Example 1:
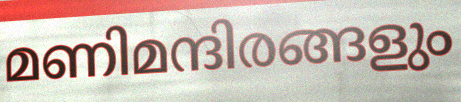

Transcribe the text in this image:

മണിമന്ദിരങ്ങളും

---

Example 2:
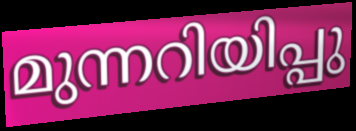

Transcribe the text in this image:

മുന്നറിയിപ്പു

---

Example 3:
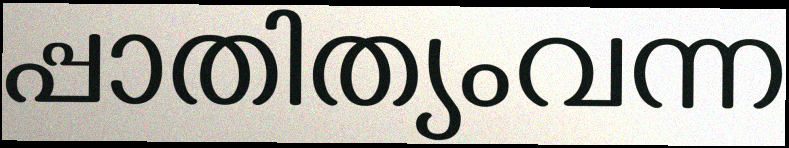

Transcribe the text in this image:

പ്പാതിത്യംവന്ന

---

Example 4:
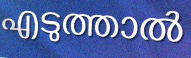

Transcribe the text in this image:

എടുത്താൽ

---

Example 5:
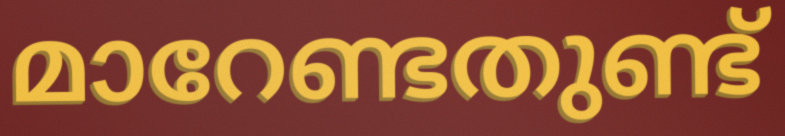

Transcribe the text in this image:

മാറേണ്ടതുണ്ട്